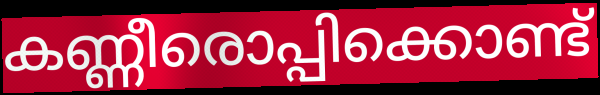
കണ്ണീരൊപ്പിക്കൊണ്ട്